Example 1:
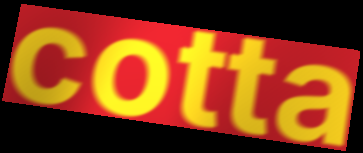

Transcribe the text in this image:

cotta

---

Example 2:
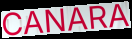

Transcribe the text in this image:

CANARA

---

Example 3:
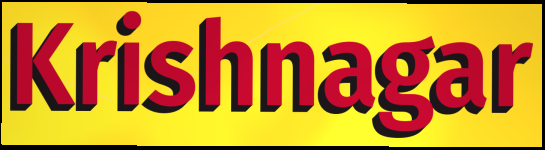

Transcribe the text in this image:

Krishnagar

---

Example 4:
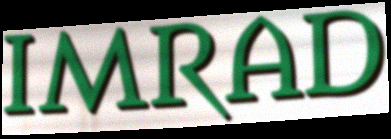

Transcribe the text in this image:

IMRAD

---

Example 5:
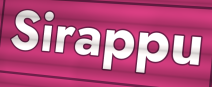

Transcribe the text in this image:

Sirappu